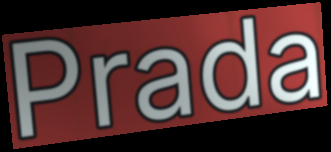
Prada